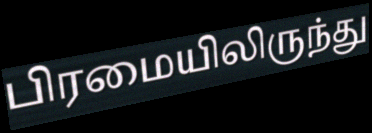
பிரமையிலிருந்து